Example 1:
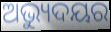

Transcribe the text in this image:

ଅଭ୍ୟୁଦୟର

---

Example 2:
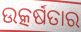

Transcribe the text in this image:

ଉତ୍କର୍ଷତାର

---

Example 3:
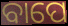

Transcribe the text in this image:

ବାପେ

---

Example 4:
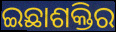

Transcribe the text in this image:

ଇଛାଶକ୍ତିର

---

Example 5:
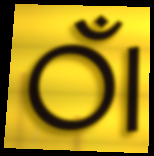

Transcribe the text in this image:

ଠାଁ